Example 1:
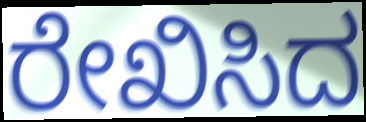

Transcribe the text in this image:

ರೇಖಿಸಿದ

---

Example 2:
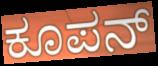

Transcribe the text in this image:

ಕೂಪನ್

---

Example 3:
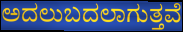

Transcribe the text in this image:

ಅದಲುಬದಲಾಗುತ್ತವೆ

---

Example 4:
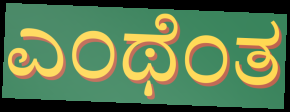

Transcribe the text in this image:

ಎಂಥೆಂತ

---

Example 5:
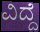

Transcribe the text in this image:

ವಿದ್ದೆ